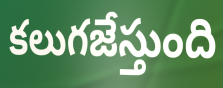
కలుగజేస్తుంది